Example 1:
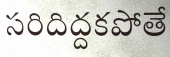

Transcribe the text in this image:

సరిదిద్దకపోతే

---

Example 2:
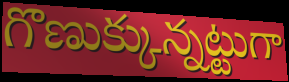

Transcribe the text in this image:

గొణుక్కున్నట్టుగా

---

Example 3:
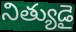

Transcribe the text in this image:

నిత్యుడై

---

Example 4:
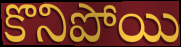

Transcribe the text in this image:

కొనిపోయి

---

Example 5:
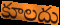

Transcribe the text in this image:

కూలదు